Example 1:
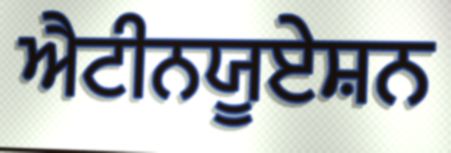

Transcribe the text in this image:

ਐਟੀਨਯੂਏਸ਼ਨ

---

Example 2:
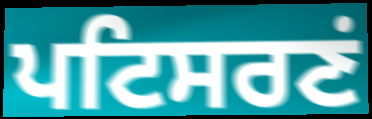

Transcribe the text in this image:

ਪਟਿਸਰਣਂ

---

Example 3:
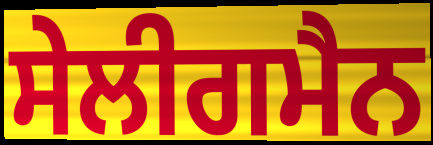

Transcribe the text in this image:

ਸੇਲੀਗਮੈਨ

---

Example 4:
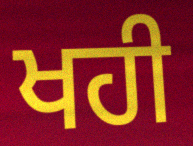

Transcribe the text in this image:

ਖਹੀ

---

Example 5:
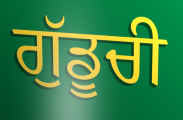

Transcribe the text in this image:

ਗੁੱਡੂਚੀ